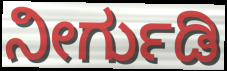
ನೀರ್ಗುಡಿ